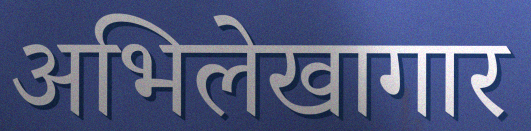
अभिलेखागार